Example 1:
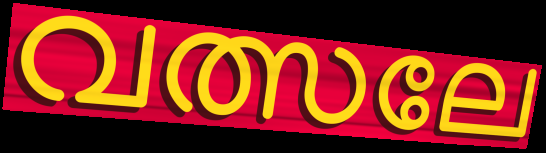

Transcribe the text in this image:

വത്സലേ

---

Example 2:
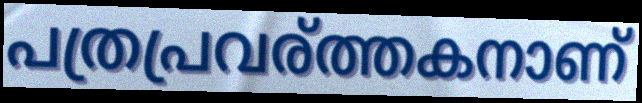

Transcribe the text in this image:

പത്രപ്രവര്ത്തകനാണ്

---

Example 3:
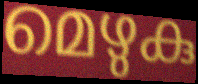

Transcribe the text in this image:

മെഴുകു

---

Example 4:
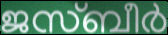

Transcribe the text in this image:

ജസ്ബീർ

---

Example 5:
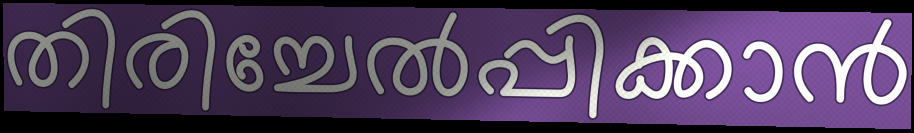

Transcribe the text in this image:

തിരിച്ചേൽപ്പിക്കാൻ